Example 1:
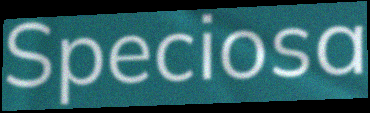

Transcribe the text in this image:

Speciosa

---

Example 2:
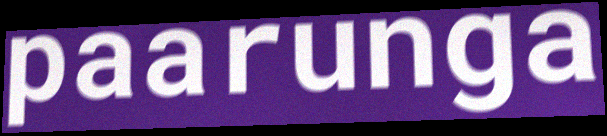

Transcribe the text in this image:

paarunga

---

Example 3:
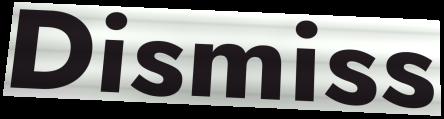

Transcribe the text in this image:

Dismiss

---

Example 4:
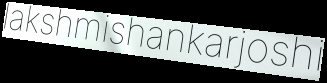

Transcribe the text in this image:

lakshmishankarjoshi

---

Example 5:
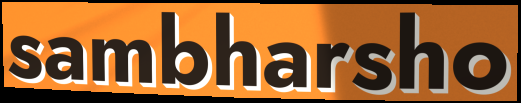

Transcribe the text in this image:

sambharsho